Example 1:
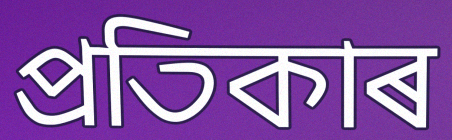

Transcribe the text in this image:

প্ৰতিকাৰ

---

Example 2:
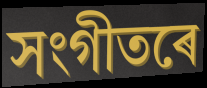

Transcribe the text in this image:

সংগীতৰে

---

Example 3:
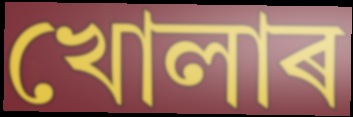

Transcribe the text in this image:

খোলাৰ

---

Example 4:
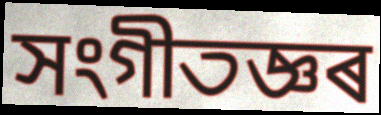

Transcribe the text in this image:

সংগীতজ্ঞৰ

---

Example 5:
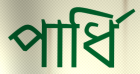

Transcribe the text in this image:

পাৰ্ধি